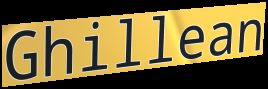
Ghillean